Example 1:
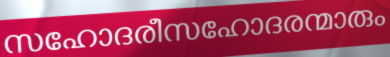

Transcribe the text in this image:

സഹോദരീസഹോദരന്മാരും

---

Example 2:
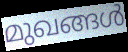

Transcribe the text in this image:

മുഖങ്ങൾ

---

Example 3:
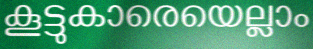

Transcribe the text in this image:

കൂട്ടുകാരെയെല്ലാം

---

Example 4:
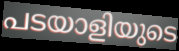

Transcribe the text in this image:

പടയാളിയുടെ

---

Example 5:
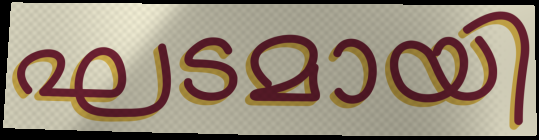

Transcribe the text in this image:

ഘടമായി